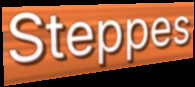
Steppes